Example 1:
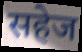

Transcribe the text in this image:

सहेज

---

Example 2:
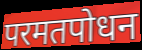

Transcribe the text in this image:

परमतपोधन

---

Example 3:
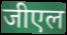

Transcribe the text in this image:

जीएल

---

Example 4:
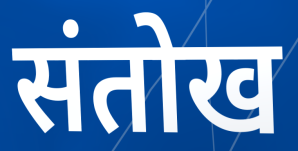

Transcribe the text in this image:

संतोख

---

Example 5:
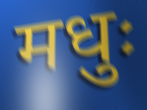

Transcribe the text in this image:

मधुः